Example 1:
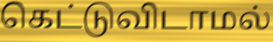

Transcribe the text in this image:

கெட்டுவிடாமல்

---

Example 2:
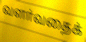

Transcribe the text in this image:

வளர்வதைக்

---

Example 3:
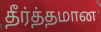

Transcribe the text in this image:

தீர்த்தமான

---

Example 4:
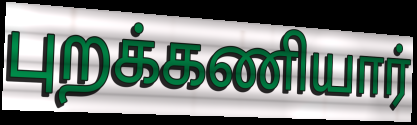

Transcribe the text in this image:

புறக்கணியார்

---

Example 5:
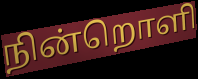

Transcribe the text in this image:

நின்றொளி